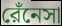
রেঁনেসা